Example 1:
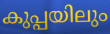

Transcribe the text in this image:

കുപ്പയിലും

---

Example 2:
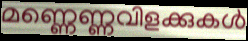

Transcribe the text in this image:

മണ്ണെണ്ണവിളക്കുകൾ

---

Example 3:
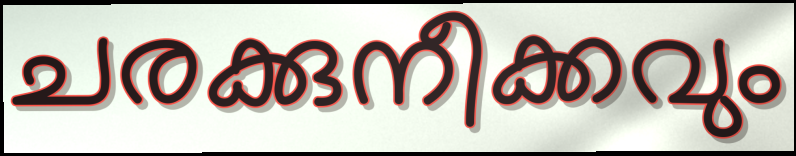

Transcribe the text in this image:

ചരക്കുനീക്കവും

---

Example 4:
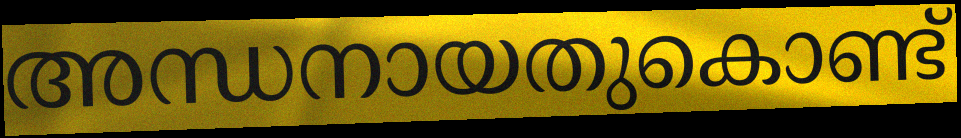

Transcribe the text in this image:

അന്ധനായതുകൊണ്ട്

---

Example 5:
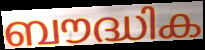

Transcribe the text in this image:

ബൗദ്ധിക